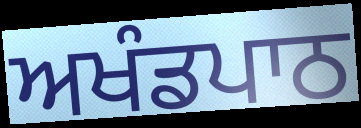
ਅਖੰਡਪਾਠ